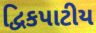
દ્વિકપાટીય